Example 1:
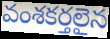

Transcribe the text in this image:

వంశకర్తలైన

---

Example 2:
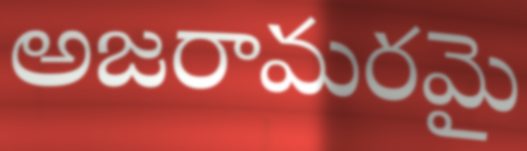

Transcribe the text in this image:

అజరామరమై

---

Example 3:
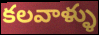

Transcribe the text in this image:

కలవాళ్ళు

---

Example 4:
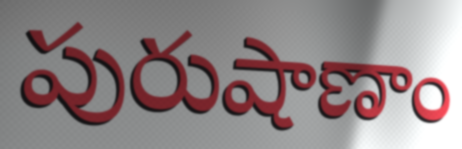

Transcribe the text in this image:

పురుషాణాం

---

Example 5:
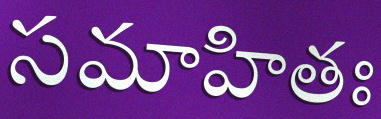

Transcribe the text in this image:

సమాహితః